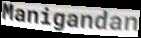
Manigandan